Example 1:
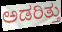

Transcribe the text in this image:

ಅಡರಿತ್ತು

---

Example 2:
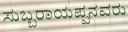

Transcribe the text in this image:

ಸುಬ್ಬರಾಯಪ್ಪನವರು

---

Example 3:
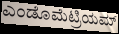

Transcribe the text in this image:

ಎಂಡೊಮೆಟ್ರಿಯಮ್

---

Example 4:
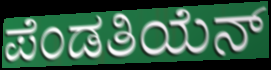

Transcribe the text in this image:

ಪೆಂಡತಿಯೆನ್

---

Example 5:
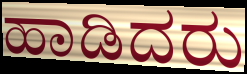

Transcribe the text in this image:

ಹಾಡಿದರು